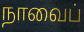
நாவைப்